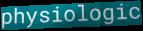
physiologic